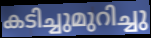
കടിച്ചുമുറിച്ചു